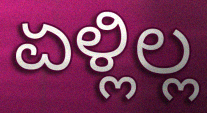
ಏಳ್ಲಿಲ್ಲ